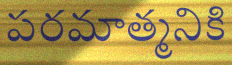
పరమాత్మనికి